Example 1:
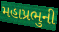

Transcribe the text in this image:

મહાપ્રભુની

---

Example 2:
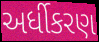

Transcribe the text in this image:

અર્ધીકરણ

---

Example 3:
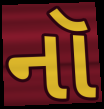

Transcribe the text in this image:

નૉ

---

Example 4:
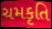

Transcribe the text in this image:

ચમકૃતિ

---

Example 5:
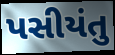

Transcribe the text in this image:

પસીયંતુ